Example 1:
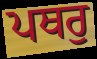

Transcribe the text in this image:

ਪਥਰੁ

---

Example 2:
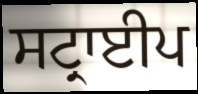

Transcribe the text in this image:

ਸਟ੍ਰਾਈਪ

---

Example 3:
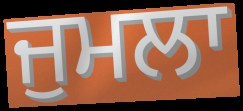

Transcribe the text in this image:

ਜੁਮਲਾ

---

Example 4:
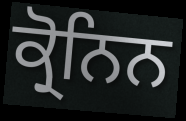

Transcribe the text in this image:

ਕ੍ਰੋਨਿਨ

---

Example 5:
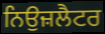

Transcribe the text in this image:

ਨਿਉਜ਼ਲੈਟਰ